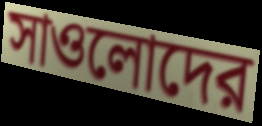
সাওলোদের